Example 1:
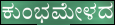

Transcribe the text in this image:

ಕುಂಭಮೇಳದ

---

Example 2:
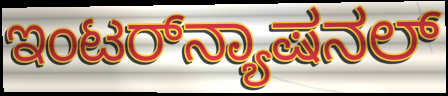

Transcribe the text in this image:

ಇಂಟರ್‌ನ್ಯಾಷನಲ್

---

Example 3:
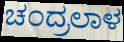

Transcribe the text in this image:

ಚಂದ್ರಲಾಳ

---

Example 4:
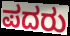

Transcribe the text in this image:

ಪದರು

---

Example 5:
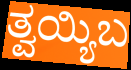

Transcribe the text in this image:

ತ್ವಯ್ಯಿಬ